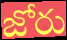
జోరు